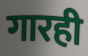
गारही